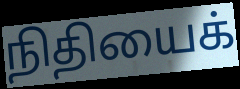
நிதியைக்